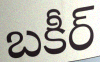
బకీర్